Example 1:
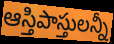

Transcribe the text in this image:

ఆస్తిపాస్తులన్నీ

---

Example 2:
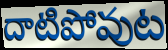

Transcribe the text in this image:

దాటిపోవుట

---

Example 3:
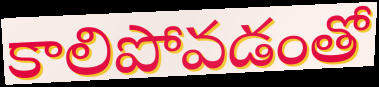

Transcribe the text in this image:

కాలిపోవడంతో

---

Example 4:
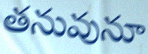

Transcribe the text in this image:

తనువునూ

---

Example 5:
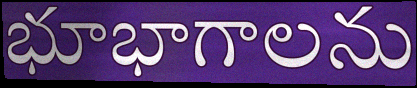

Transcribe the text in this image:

భూభాగాలను